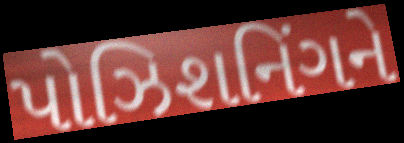
પોઝિશનિંગને